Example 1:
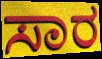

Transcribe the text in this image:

ಸಾರ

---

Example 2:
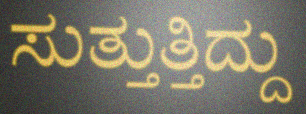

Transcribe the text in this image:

ಸುತ್ತುತ್ತಿದ್ದು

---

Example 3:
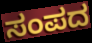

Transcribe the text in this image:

ಸಂಪದ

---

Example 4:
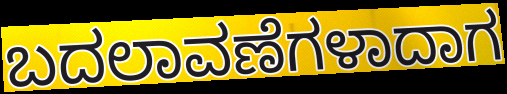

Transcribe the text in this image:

ಬದಲಾವಣೆಗಳಾದಾಗ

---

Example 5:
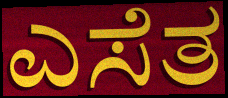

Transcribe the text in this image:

ಎಸೆತ